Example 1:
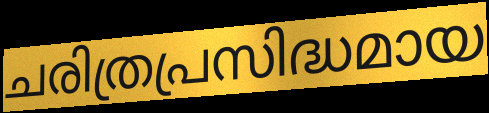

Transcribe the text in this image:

ചരിത്രപ്രസിദ്ധമായ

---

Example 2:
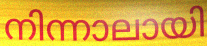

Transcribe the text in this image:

നിന്നാലായി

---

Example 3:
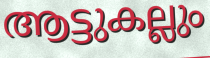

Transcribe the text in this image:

ആട്ടുകല്ലും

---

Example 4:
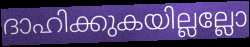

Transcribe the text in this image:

ദാഹിക്കുകയില്ലല്ലോ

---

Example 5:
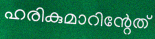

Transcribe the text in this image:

ഹരികുമാറിന്റേത്